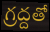
గ్రద్దతో